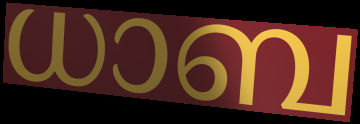
ധാബ